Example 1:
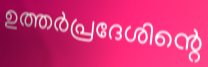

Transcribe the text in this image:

ഉത്തർപ്രദേശിന്റെ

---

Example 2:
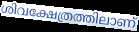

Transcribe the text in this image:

ശിവക്ഷേത്രത്തിലാണ്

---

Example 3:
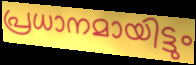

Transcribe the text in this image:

പ്രധാനമായിട്ടും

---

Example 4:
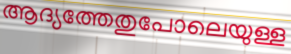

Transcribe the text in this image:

ആദ്യത്തേതുപോലെയുള്ള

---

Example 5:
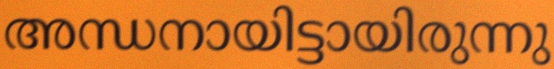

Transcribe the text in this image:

അന്ധനായിട്ടായിരുന്നു